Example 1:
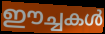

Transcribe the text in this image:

ഈച്ചകൾ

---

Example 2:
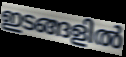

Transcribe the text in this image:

ഇടങ്ങളിൽ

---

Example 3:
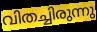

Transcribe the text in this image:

വിതച്ചിരുന്നു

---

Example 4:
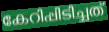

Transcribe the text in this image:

കേറിപ്പിടിച്ചത്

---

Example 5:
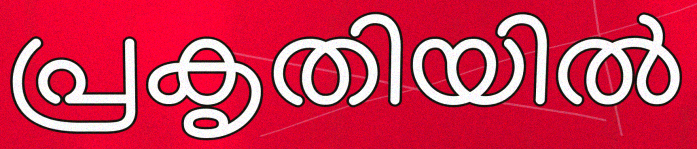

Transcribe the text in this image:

പ്രകൃതിയിൽ